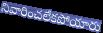
నివారించలేకపోయారు